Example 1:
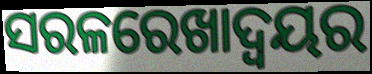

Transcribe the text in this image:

ସରଳରେଖାଦ୍ବୟର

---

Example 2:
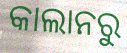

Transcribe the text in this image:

କାଲାନରୁ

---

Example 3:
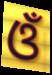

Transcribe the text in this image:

ଓଁ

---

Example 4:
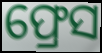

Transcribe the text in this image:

ଫ୍ରେସ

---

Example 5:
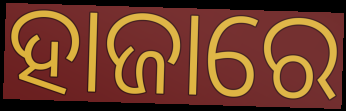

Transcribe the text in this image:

ହାଜାରେ